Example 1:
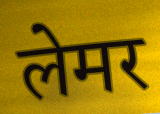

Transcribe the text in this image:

लेमर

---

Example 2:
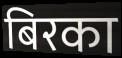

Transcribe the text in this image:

बिरका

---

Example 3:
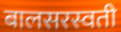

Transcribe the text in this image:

बालसरस्वती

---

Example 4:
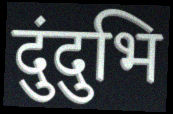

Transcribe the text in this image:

दुंदुभि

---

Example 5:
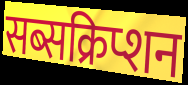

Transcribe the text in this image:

सब्सक्रिप्शन